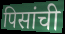
पिसांची